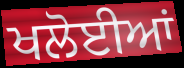
ਖਲੋਈਆਂ